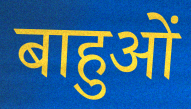
बाहुओं